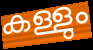
കള്ളും